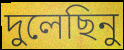
দুলেছিনু